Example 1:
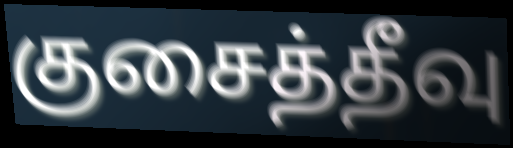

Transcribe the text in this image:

குசைத்தீவு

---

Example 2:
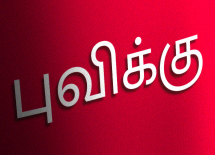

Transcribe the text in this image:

புவிக்கு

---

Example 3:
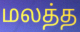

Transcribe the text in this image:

மலத்த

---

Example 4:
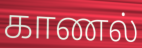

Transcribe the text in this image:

காணல்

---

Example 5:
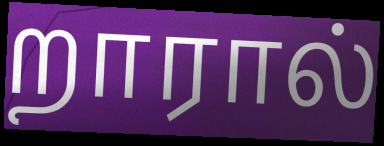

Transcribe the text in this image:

றாரால்